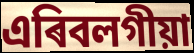
এৰিবলগীয়া